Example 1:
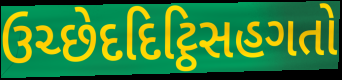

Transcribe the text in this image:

ઉચ્છેદદિટ્ઠિસહગતો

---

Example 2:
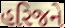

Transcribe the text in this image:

હરિજને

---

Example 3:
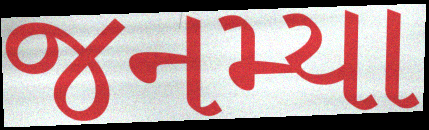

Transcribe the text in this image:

જનમ્યા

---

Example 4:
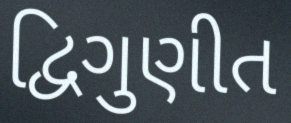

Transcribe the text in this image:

દ્વિગુણીત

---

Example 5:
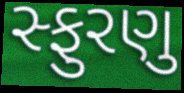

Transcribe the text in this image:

સ્ફુરણુ